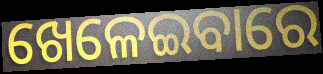
ଖେଳେଇବାରେ